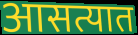
आसत्यात